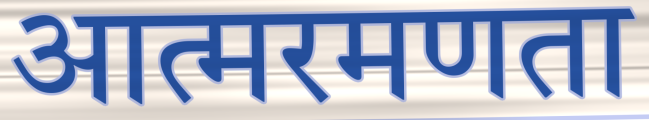
आत्मरमणता